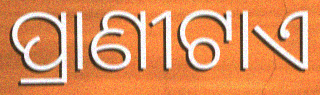
ପ୍ରାଣୀଟାଏ